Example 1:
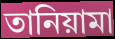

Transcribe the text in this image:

তানিয়ামা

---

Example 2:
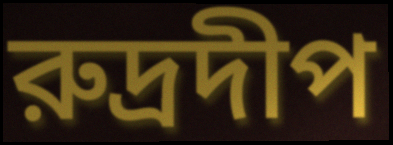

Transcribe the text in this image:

রুদ্রদীপ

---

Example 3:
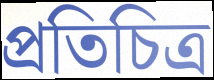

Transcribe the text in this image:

প্রতিচিত্র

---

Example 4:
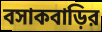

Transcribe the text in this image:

বসাকবাড়ির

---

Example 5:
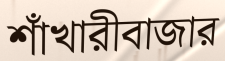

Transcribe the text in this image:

শাঁখারীবাজার